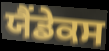
ਯੈਂਡੇਕਸ